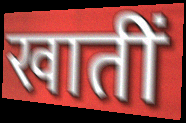
खातीं